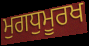
ਮੁਗਧੁਮੂਰਖ